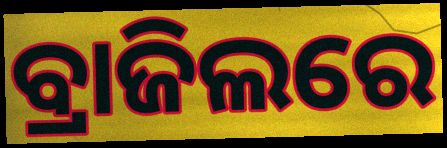
ବ୍ରାଜିଲରେ